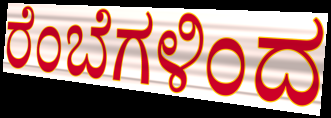
ರೆಂಬೆಗಳಿಂದ